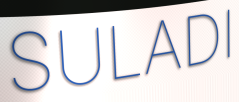
SULADI